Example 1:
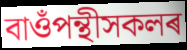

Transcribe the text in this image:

বাওঁপন্থীসকলৰ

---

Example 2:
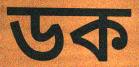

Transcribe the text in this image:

ডক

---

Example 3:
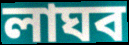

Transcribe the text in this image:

লাঘব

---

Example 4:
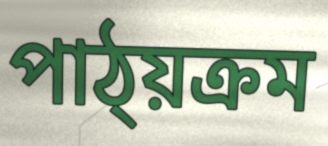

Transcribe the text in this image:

পাঠ্য়ক্ৰম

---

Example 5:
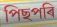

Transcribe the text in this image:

পিছপৰি